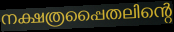
നക്ഷത്രപ്പൈതലിന്റെ